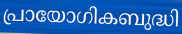
പ്രായോഗികബുദ്ധി